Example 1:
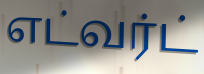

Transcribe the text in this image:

எட்வர்ட்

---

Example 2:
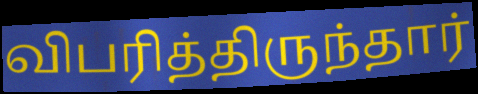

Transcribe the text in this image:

விபரித்திருந்தார்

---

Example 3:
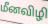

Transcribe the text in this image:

மீனவிழி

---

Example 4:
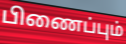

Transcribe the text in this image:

பிணைப்பும்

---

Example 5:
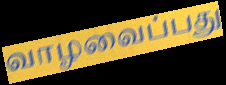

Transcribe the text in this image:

வாழவைப்பது